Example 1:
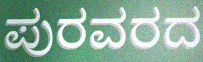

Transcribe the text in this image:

ಪುರವರದ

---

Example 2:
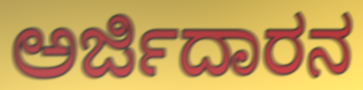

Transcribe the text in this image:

ಅರ್ಜಿದಾರನ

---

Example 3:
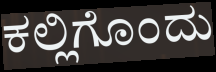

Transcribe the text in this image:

ಕಲ್ಲಿಗೊಂದು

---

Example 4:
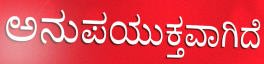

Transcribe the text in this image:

ಅನುಪಯುಕ್ತವಾಗಿದೆ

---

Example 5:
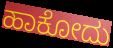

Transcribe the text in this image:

ಹಾಕೋದು